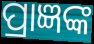
ପ୍ରାଜ୍ଞଙ୍କ